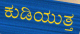
ಕುಡಿಯುತ್ತ